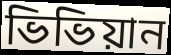
ভিভিয়ান